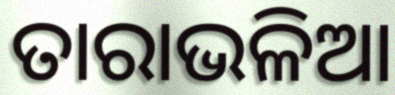
ତାରାଭଳିଆ